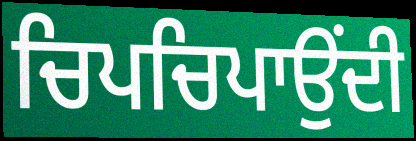
ਚਿਪਚਿਪਾਉਂਦੀ